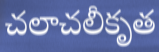
చలాచలీకృత